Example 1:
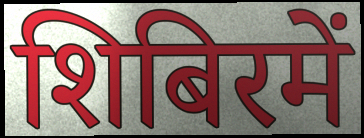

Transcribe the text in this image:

शिबिरमें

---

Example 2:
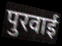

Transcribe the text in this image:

पुरवाई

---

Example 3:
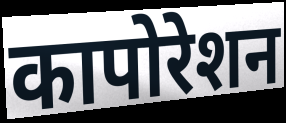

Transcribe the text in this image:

कापोरेशन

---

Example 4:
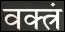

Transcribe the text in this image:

वक्त्रं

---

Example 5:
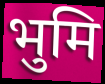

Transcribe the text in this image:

भुमि